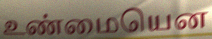
உண்மையென